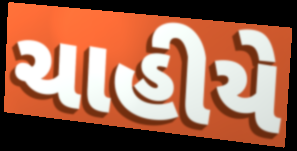
ચાહીયે